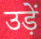
उड़ें